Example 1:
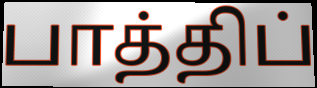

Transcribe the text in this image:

பாத்திப்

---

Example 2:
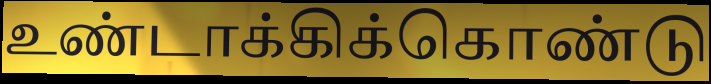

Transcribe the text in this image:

உண்டாக்கிக்கொண்டு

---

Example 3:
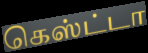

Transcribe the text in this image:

கெஸ்ட்டா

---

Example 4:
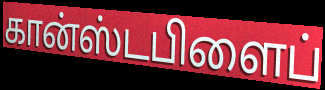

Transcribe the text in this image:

கான்ஸ்டபிளைப்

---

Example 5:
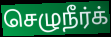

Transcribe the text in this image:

செழுநீர்க்